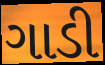
ગાડી